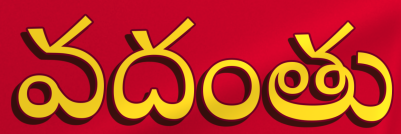
వదంతు